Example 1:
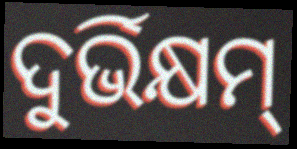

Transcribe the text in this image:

ଦୁର୍ଭିକ୍ଷମ୍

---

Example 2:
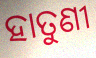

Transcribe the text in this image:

ହାତୁଣୀ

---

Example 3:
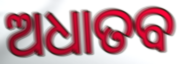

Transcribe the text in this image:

ଅଧାତବ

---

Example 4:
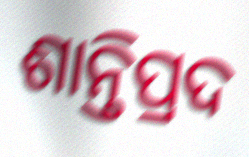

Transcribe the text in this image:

ଶାନ୍ତିପ୍ରଦ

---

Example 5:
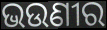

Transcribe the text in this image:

ଭଉଣୀର